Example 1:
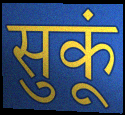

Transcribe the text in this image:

सुकूं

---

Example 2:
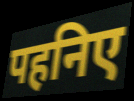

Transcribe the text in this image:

पहनिए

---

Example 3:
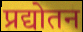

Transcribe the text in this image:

प्रद्योतन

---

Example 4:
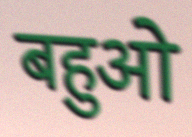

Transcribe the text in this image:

बहुओ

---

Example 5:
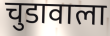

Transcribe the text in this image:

चुडावाला